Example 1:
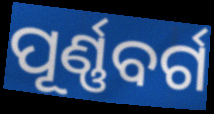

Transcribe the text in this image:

ପୂର୍ଣ୍ଣବର୍ଗ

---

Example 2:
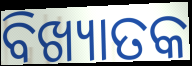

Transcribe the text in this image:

ବିଖ୍ୟାତକ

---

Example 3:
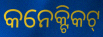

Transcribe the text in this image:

କନେକ୍ଟିକଟ୍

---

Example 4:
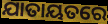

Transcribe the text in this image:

ଯାତାୟତରେ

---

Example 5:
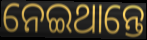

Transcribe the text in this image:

ନେଇଥାନ୍ତେ